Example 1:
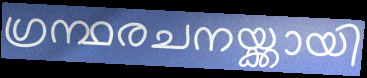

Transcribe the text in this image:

ഗ്രന്ഥരചനയ്ക്കായി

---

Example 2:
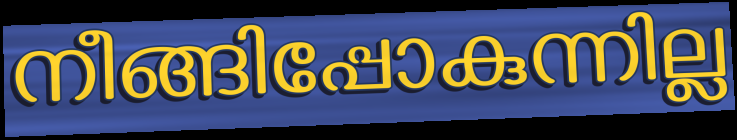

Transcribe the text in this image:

നീങ്ങിപ്പോകുന്നില്ല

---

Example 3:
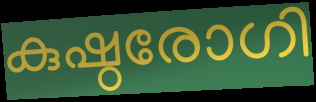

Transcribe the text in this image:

കുഷ്ഠരോഗി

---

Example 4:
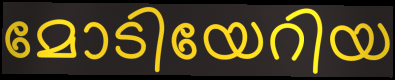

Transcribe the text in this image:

മോടിയേറിയ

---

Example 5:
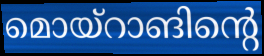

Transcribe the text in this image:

മൊയ്റാങിന്റെ